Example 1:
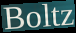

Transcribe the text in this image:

Boltz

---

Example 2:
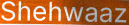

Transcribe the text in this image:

Shehwaaz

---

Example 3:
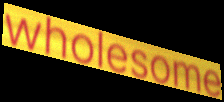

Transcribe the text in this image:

wholesome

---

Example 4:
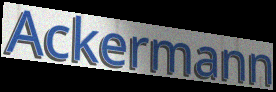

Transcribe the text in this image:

Ackermann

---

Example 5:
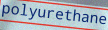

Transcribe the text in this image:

polyurethane